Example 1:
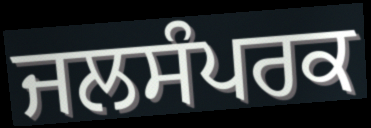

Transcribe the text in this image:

ਜਲਸੰਪਰਕ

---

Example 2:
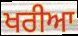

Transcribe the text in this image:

ਖਰੀਆ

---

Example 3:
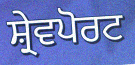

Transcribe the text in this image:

ਸ਼੍ਰੇਵਪੋਰਟ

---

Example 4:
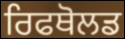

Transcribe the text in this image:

ਰਿਫਥੋਲਡ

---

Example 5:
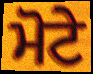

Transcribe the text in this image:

ਮੋਟੇ